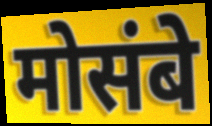
मोसंबे